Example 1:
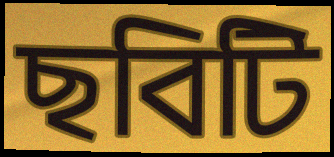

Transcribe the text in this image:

ছবিটি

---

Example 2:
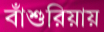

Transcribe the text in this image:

বাঁশুরিয়ায়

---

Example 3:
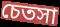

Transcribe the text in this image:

চেতসা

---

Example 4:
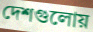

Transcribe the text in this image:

দেশগুলোয়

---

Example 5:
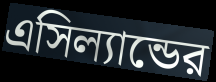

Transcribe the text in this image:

এসিল্যান্ডের